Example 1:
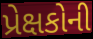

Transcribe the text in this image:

પ્રેક્ષકોની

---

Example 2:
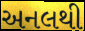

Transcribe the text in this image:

અનલથી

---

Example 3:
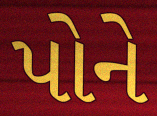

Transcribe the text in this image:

પોને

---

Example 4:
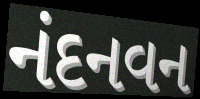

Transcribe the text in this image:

નંદનવન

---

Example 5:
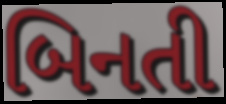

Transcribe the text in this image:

બિનતી